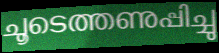
ചൂടെത്തണുപ്പിച്ചു